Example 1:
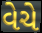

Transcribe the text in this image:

વેચે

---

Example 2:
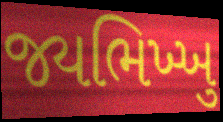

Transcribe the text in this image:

જ્યભિખ્ખુ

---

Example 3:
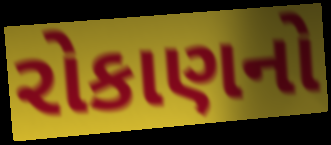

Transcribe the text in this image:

રોકાણનો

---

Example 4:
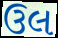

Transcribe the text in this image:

ઉલ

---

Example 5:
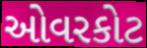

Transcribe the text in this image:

ઓવરકોટ